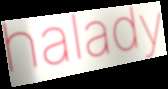
halady